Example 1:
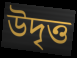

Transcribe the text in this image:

উদৃত্ত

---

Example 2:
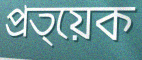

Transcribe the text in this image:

প্ৰত্য়েক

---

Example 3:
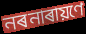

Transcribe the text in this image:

নৰনাৰায়ণে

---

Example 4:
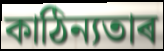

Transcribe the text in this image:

কাঠিন্যতাৰ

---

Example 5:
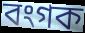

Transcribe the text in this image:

বংগক